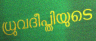
ധ്രുവദീപ്തിയുടെ